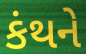
કંથને